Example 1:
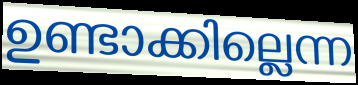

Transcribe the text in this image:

ഉണ്ടാക്കില്ലെന്ന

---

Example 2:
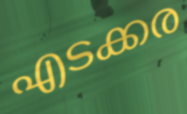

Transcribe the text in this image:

എടക്കര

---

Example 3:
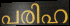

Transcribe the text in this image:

പരിഹ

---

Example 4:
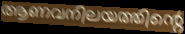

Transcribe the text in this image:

ആണവനിലയത്തിന്റെ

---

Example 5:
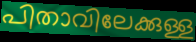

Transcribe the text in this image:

പിതാവിലേക്കുള്ള